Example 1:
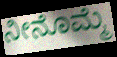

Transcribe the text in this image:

ನೀನೊಮ್ಮೆ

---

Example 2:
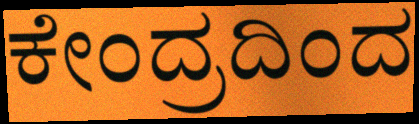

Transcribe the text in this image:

ಕೇಂದ್ರದಿಂದ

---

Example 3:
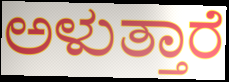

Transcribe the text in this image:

ಅಳುತ್ತಾರೆ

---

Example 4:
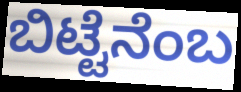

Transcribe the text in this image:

ಬಿಟ್ಟೆನೆಂಬ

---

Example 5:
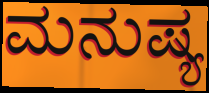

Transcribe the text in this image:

ಮನುಷ್ಯ